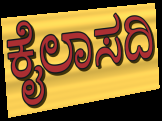
ಕೈಲಾಸದಿ